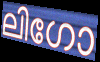
ലിഗോ